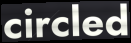
circled